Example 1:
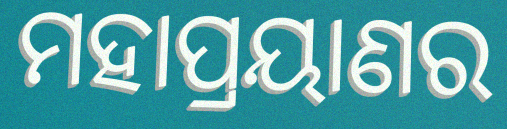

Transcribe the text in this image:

ମହାପ୍ରୟାଣର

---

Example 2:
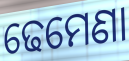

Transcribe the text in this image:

ଢେମେଣା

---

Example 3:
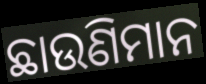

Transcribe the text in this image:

ଛାଉଣିମାନ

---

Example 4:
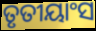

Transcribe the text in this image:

ତୃତୀୟାଂସ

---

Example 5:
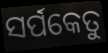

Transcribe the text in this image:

ସର୍ପକେତୁ